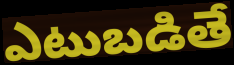
ఎటుబడితే